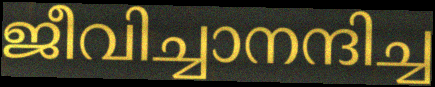
ജീവിച്ചാനന്ദിച്ച